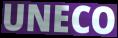
UNECO